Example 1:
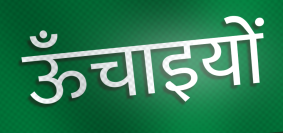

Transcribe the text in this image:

ऊँचाइयों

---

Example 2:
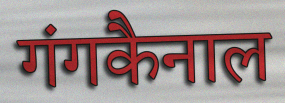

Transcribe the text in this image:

गंगकैनाल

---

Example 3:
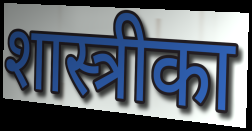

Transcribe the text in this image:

शास्त्रीका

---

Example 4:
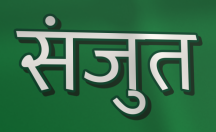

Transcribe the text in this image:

संजुत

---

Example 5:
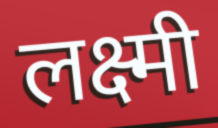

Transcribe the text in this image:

लक्ष्‍मी